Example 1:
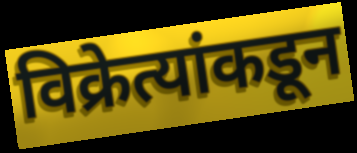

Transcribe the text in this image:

विक्रेत्यांकडून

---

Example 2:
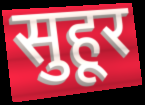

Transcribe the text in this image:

सुहूर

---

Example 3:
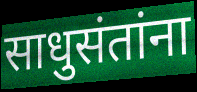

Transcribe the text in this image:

साधुसंतांना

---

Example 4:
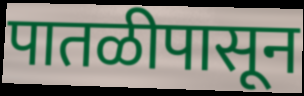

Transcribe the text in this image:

पातळीपासून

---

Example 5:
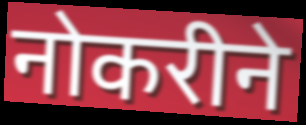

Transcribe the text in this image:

नोकरीने